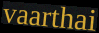
vaarthai